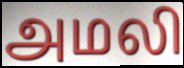
அமலி